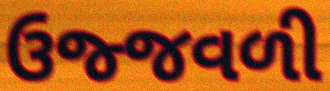
ઉજ્જવળી